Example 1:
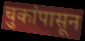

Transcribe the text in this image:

चुकांपासून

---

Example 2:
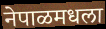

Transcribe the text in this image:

नेपाळमधला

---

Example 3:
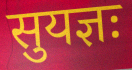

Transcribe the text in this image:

सुयज्ञः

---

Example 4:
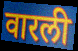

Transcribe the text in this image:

वारली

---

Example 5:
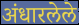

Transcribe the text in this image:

अंधारलेले